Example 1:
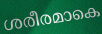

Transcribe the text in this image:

ശരീരമാകെ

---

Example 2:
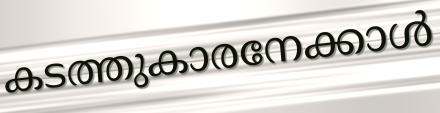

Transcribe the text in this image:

കടത്തുകാരനേക്കാൾ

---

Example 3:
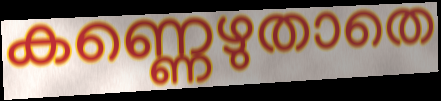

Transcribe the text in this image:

കണ്ണെഴുതാതെ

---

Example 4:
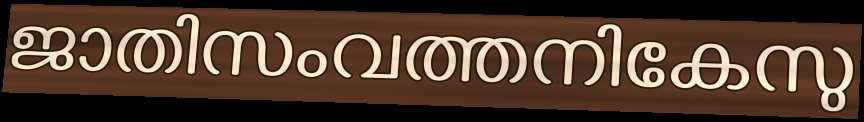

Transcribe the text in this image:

ജാതിസംവത്തനികേസു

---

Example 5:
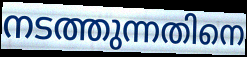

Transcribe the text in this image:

നടത്തുന്നതിനെ